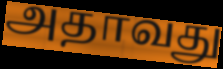
அதாவது